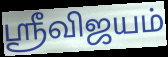
ஸ்ரீவிஜயம்